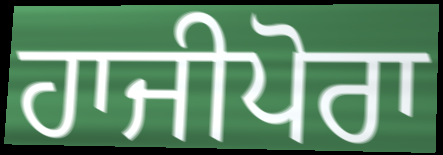
ਹਾਜੀਪੋਰਾ